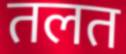
तलत